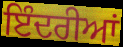
ਇੰਦਰੀਆਂ